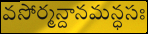
వసోర్మన్దానమన్ధసః